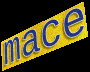
mace